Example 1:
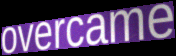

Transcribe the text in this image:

overcame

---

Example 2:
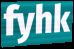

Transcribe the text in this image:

fyhk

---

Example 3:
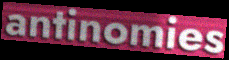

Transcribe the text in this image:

antinomies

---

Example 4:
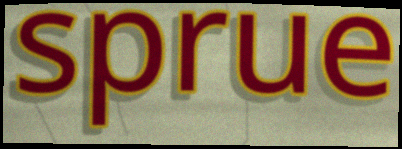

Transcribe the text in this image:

sprue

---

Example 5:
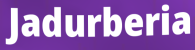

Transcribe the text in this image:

Jadurberia